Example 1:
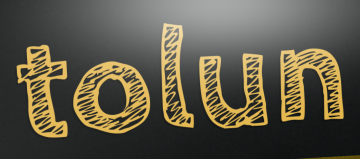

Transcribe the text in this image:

tolun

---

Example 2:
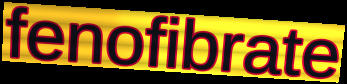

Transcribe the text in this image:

fenofibrate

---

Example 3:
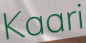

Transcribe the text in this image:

Kaari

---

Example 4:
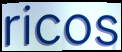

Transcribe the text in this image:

ricos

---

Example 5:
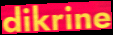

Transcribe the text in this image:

dikrine